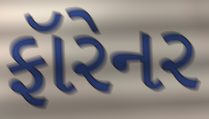
ફૉરેનર